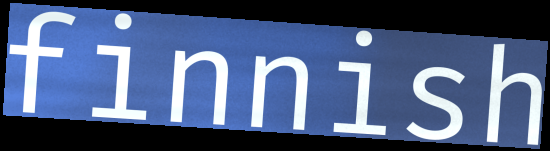
finnish